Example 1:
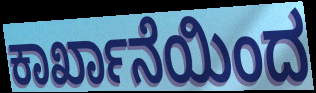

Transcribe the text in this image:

ಕಾರ್ಖಾನೆಯಿಂದ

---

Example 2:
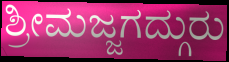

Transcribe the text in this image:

ಶ್ರೀಮಜ್ಜಗದ್ಗುರು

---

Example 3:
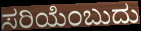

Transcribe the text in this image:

ಸರಿಯೆಂಬುದು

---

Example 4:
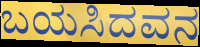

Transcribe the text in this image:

ಬಯಸಿದವನ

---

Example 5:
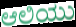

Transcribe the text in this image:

ಆಲಿಯು